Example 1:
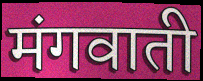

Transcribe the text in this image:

मंगवाती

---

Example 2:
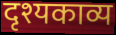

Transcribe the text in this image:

दृश्यकाव्य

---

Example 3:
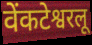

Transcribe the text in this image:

वेंकटेश्वरलू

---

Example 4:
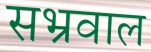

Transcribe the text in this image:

सभ्रवाल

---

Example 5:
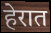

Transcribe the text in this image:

हेरात